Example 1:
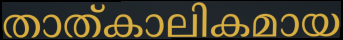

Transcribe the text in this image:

താത്കാലികമായ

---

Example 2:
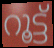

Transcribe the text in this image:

റൂട്ട്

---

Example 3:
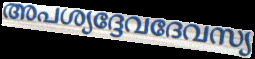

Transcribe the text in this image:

അപശ്യദ്ദേവദേവസ്യ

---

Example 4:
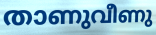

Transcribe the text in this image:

താണുവീണു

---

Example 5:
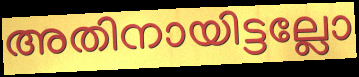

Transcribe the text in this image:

അതിനായിട്ടല്ലോ